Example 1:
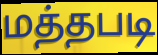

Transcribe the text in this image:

மத்தபடி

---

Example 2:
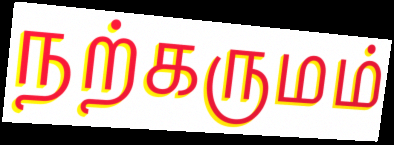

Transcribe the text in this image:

நற்கருமம்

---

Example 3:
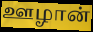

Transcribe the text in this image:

ஊழான்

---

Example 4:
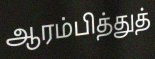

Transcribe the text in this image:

ஆரம்பித்துத்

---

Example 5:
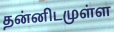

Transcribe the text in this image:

தன்னிடமுள்ள